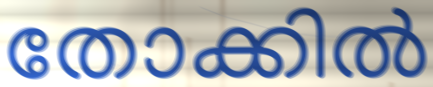
തോക്കിൽ